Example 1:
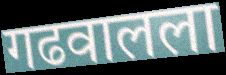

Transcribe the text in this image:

गढवालला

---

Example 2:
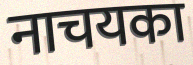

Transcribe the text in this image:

नाचयका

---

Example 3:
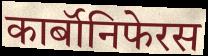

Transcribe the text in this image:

कार्बॉनिफेरस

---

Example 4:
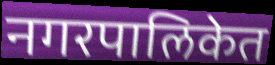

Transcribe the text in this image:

नगरपालिकेत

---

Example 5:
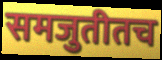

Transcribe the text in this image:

समजुतीतच